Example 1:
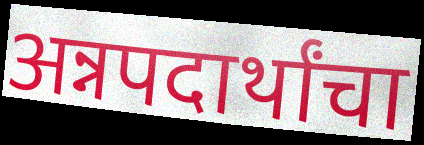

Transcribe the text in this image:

अन्नपदार्थांचा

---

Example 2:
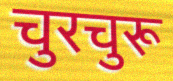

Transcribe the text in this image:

चुरचुरू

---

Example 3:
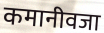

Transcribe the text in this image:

कमानीवजा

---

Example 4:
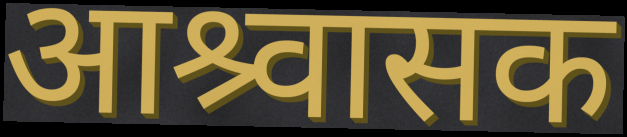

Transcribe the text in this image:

आश्र्वासक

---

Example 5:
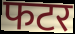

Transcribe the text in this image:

फटर